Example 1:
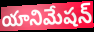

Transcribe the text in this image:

యానిమేషన్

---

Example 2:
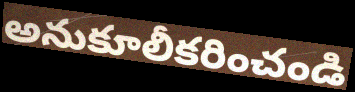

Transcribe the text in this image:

అనుకూలీకరించండి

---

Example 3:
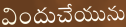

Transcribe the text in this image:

విందుచేయును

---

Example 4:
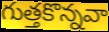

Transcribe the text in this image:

గుత్తకొన్నవా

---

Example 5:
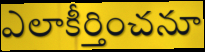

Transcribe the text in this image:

ఎలాకీర్తించనూ